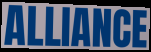
ALLIANCE